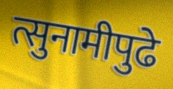
त्सुनामीपुढे